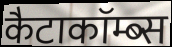
कैटाकॉम्ब्स